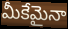
మీకేమైనా